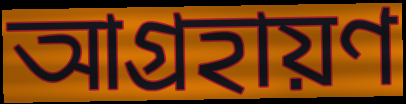
আগ্রহায়ণ